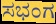
ಸಭಂಗ